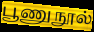
பூணுநூல்